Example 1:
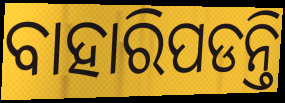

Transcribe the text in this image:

ବାହାରିପଡନ୍ତି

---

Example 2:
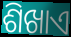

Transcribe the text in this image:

ଶିଖାଏ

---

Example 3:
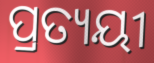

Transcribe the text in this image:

ପ୍ରତ୍ୟୟୀ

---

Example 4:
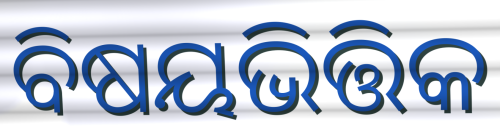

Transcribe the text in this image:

ବିଷୟଭିତ୍ତିକ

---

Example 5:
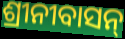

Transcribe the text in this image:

ଶ୍ରୀନୀବାସନ୍